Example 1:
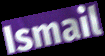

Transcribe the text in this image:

Ismail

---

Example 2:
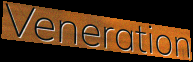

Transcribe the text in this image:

Veneration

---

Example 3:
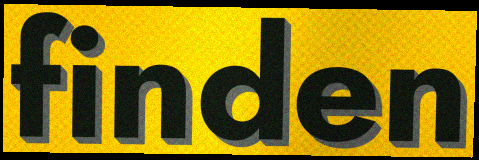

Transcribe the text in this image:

finden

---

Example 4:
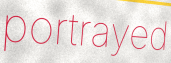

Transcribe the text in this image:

portrayed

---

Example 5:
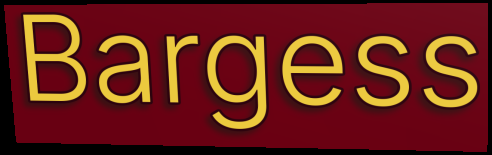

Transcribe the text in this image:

Bargess